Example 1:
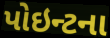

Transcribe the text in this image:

પોઇન્ટના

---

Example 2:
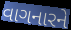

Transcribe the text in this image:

વાગનારને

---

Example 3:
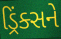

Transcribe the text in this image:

ડ્રિંક્સને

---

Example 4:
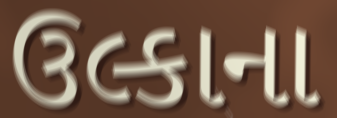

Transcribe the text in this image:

ઉલ્કાના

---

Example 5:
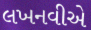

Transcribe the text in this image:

લખનવીએ